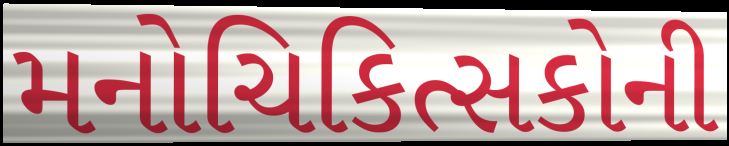
મનોચિકિત્સકોની